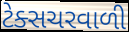
ટેક્સચરવાળી